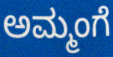
ಅಮ್ಮಂಗೆ